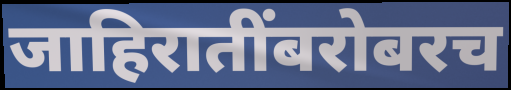
जाहिरातींबरोबरच